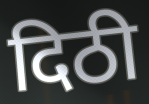
दिठी